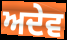
ਅਦੇਵ